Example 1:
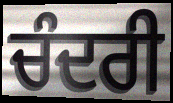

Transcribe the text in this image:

ਚੰਦਰੀ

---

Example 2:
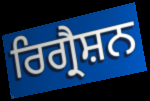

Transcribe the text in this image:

ਰਿਗ੍ਰੈਸ਼ਨ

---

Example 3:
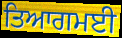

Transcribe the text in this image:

ਤਿਆਗਮਈ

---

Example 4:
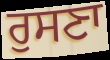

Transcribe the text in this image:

ਰੁਸਣਾ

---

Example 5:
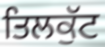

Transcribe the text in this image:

ਤਿਲਕੁੱਟ